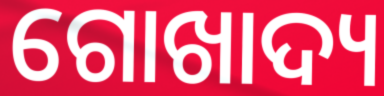
ଗୋଖାଦ୍ୟ